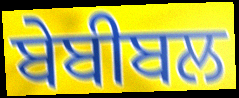
ਬੇਬੀਬਲ